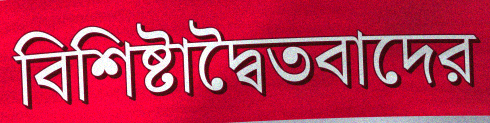
বিশিষ্টাদ্বৈতবাদের